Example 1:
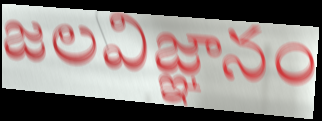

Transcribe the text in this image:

జలవిజ్ఞానం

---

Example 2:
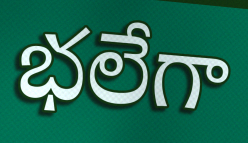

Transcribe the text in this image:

భలేగా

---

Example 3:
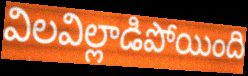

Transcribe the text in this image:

విలవిల్లాడిపోయింది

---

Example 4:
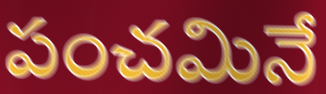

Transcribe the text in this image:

పంచమినే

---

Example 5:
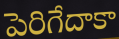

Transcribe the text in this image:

పెరిగేదాకా